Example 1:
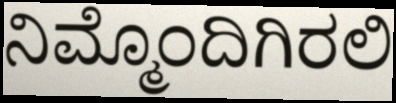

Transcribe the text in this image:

ನಿಮ್ಮೊಂದಿಗಿರಲಿ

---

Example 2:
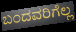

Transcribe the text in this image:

ಬಂದವರಿಗೆಲ್ಲ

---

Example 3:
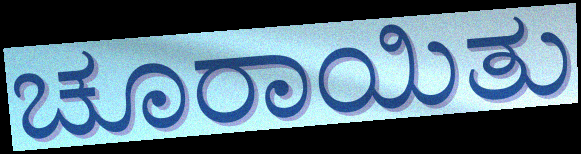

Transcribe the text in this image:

ಚೂರಾಯಿತು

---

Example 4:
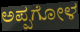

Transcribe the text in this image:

ಅಪ್ಪಗೋಳ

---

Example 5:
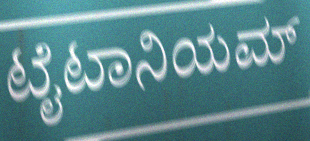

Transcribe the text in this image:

ಟೈಟಾನಿಯಮ್